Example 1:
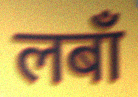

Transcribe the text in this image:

लबाँ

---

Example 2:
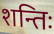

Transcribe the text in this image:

शन्तिः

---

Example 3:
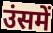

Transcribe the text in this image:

उंसमें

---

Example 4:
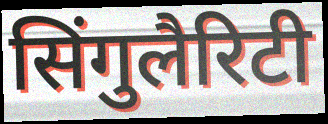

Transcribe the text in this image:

सिंगुलैरिटी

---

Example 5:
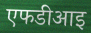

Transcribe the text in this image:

एफडीआइ